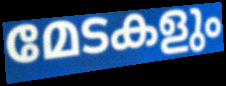
മേടകളും